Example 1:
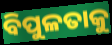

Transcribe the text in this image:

ବିପୁଳତାକୁ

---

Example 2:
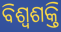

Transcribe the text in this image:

ବିଶ୍ଵଶକ୍ତି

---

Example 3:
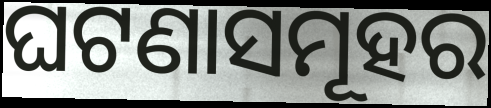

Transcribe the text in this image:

ଘଟଣାସମୂହର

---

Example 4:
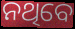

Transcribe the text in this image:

ନଥିବେ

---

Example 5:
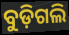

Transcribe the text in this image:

ବୁଡ଼ିଗଲି